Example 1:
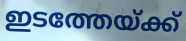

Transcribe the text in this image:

ഇടത്തേയ്ക്ക്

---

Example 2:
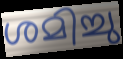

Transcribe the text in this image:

ശമിച്ചു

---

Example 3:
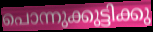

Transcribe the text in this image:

പൊന്നുക്കുട്ടിക്കു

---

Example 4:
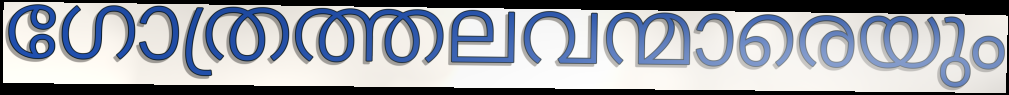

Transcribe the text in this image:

ഗോത്രത്തലവന്മാരെയും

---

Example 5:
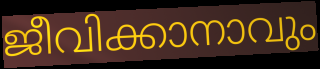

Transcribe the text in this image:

ജീവിക്കാനാവും